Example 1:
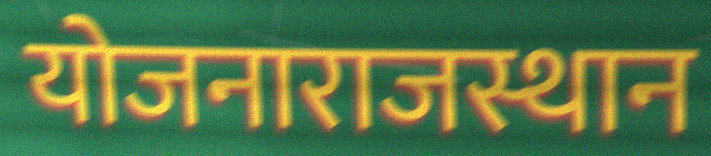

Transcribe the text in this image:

योजनाराजस्थान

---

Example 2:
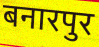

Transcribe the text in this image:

बनारपुर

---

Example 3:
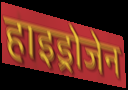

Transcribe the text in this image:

हाइड्रोजेन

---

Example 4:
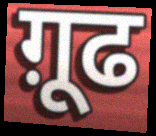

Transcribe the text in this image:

ग़ूढ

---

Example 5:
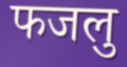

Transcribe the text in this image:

फजलु